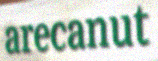
arecanut